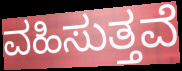
ವಹಿಸುತ್ತವೆ